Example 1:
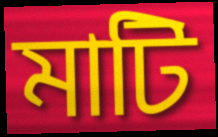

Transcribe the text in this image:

মাটি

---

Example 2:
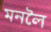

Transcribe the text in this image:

মনলৈ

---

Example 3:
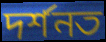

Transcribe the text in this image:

দৰ্শনত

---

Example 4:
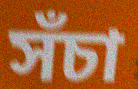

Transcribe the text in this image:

সঁচা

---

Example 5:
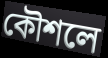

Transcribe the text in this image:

কৌশলে